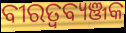
ବୀରତ୍ବବ୍ୟଞ୍ଜକ